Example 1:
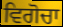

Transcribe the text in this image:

ਵਿਗੋਚਾ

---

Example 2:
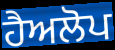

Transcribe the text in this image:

ਹੈਅਲੋਪ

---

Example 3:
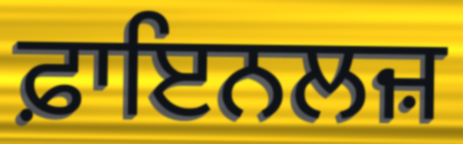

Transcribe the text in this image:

ਫ਼ਾਇਨਲਜ਼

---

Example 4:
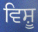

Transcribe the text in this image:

ਵਿਸ਼ੂ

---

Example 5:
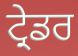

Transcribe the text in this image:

ਟ੍ਰੇਡਰ